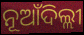
ନୂଆଁଦିଲ୍ଲୀ